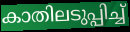
കാതിലടുപ്പിച്ച്